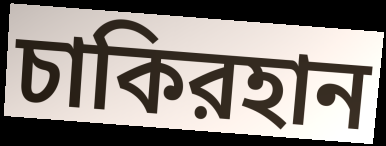
চাকিরহান